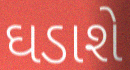
ઘડાશે